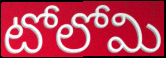
టోలోమి